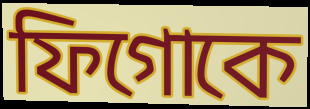
ফিগোকে